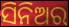
ସିନିଅର